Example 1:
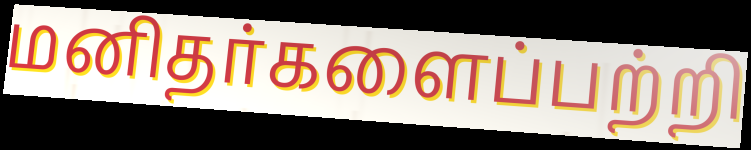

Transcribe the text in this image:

மனிதர்களைப்பற்றி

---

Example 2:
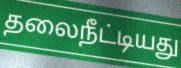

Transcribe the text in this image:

தலைநீட்டியது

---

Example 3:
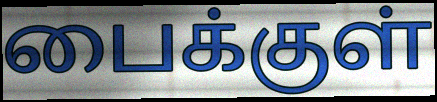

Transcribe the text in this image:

பைக்குள்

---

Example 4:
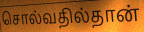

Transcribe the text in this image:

சொல்வதில்தான்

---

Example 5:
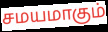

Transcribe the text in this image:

சமயமாகும்